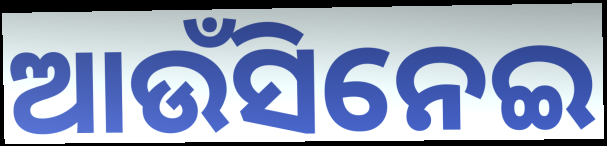
ଆଉଁସିନେଇ